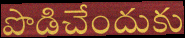
పొడిచేందుకు